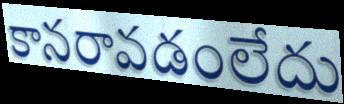
కానరావడంలేదు